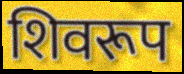
शिवरूप